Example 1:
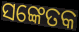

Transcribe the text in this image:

ସଙ୍କେତକ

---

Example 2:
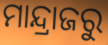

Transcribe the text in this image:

ମାନ୍ଦ୍ରାଜରୁ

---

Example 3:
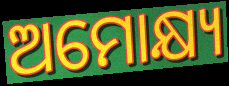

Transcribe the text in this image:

ଅମୋକ୍ଷ୍ୟ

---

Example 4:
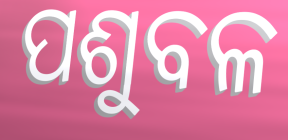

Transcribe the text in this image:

ପଶୁବଳ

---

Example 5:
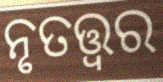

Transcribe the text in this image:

ନୃତତ୍ତ୍ୱର